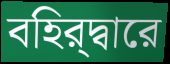
বহির্‌দ্বারে